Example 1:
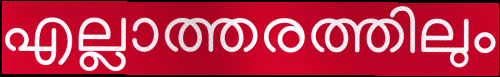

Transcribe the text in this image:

എല്ലാത്തരത്തിലും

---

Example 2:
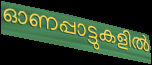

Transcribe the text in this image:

ഓണപ്പാട്ടുകളിൽ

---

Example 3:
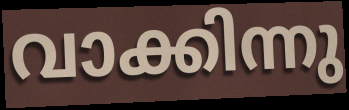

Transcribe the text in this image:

വാക്കിന്നു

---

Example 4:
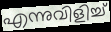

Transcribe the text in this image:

എന്നുവിളിച്ച്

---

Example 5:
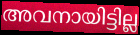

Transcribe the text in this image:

അവനായിട്ടില്ല